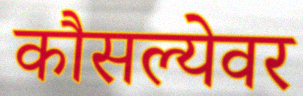
कौसल्येवर